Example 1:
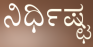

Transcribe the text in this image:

ನಿರ್ಧಿಷ್ಟ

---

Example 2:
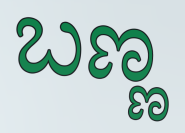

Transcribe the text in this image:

ಬಣ್ಣ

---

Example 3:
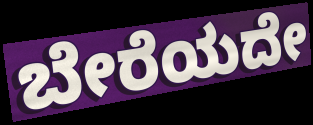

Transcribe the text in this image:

ಬೇರೆಯದೇ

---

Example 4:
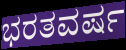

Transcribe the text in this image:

ಭರತವರ್ಷ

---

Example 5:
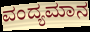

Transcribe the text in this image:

ವಂದ್ಯಮಾನ